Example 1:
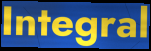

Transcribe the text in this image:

Integral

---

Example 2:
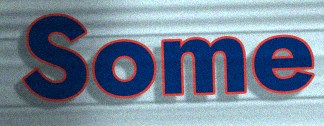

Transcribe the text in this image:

Some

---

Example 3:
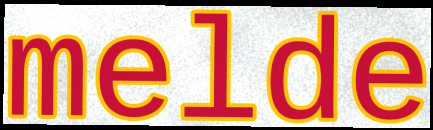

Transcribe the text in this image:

melde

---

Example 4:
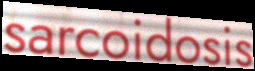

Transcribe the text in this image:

sarcoidosis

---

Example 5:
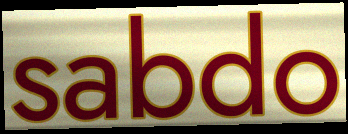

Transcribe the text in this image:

sabdo